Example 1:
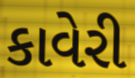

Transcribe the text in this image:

કાવેરી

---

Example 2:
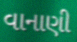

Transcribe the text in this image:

વાનાણી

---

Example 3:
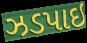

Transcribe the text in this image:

ઝડપાઇ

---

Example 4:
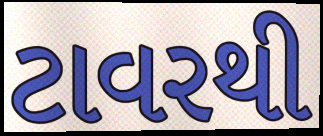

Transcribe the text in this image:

ટાવરથી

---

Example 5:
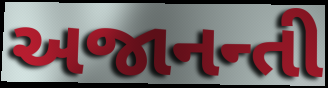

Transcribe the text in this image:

અજાનન્તી